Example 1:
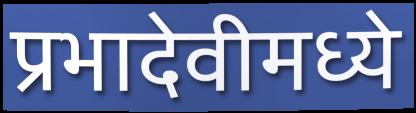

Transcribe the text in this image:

प्रभादेवीमध्ये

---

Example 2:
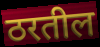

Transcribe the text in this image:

ठरतील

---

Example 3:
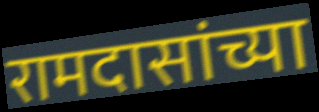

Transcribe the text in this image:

रामदासांच्या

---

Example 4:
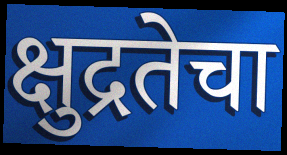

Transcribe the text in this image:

क्षुद्रतेचा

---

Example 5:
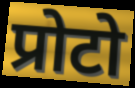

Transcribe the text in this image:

प्रोटो